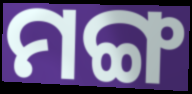
ମଙ୍ଗ